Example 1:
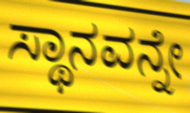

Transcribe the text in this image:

ಸ್ಥಾನವನ್ನೇ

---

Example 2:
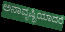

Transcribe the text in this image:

ಅನಾವೃಷ್ಟಿಯಾದರೆ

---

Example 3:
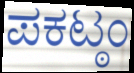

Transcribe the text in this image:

ಪಕಟ್ಠಂ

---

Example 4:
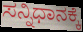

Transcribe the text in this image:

ಸನ್ನಿಧಾನಕ್ಕೆ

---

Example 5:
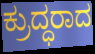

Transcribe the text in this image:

ಕ್ರುದ್ಧರಾದ